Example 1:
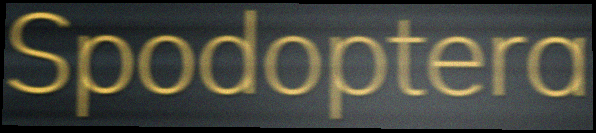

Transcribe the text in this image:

Spodoptera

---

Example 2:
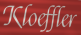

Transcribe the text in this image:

Kloeffler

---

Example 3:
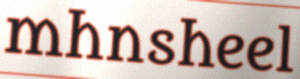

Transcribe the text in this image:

mhnsheel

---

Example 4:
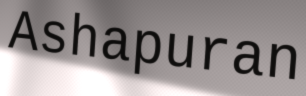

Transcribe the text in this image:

Ashapuran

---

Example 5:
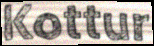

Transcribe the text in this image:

Kottur